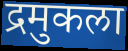
द्रमुकला